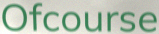
Ofcourse